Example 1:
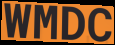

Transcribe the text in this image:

WMDC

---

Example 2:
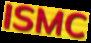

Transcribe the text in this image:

ISMC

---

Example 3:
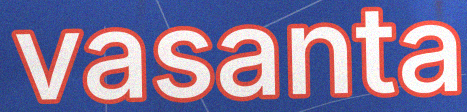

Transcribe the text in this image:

vasanta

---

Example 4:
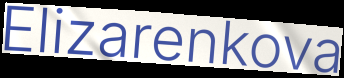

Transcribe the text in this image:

Elizarenkova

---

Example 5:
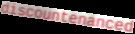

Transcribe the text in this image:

discountenanced